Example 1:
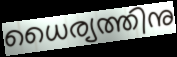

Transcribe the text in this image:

ധൈര്യത്തിനു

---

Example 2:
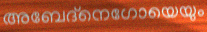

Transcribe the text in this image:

അബേദ്നെഗോയെയും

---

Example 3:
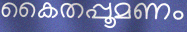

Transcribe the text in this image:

കൈതപ്പൂമണം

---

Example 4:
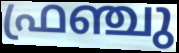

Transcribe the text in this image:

ഫ്രഞ്ചു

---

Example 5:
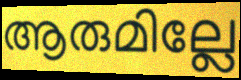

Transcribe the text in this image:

ആരുമില്ലേ